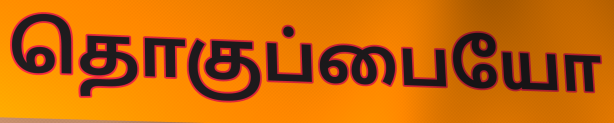
தொகுப்பையோ